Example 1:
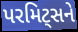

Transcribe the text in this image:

પરમિટ્સને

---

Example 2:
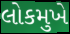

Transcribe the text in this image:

લોકમુખે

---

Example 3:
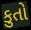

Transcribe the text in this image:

કુતો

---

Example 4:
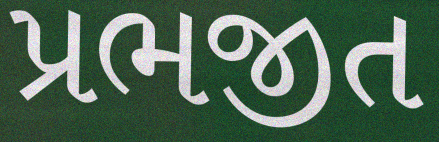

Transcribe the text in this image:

પ્રભજીત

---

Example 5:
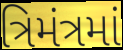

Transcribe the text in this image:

ત્રિમંત્રમાં